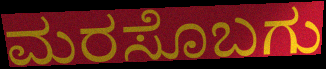
ಮರಸೊಬಗು